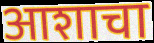
आशाचा